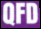
QFD